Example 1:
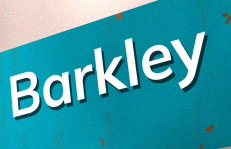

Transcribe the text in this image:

Barkley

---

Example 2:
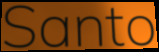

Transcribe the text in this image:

Santo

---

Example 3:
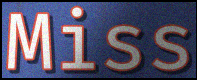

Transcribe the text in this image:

Miss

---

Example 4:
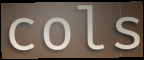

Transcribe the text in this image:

cols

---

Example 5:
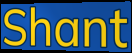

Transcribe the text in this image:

Shant